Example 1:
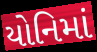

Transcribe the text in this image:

યોનિમાં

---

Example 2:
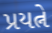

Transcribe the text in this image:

પ્રયત્ને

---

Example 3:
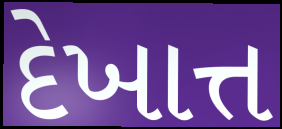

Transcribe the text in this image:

દેખાત્ત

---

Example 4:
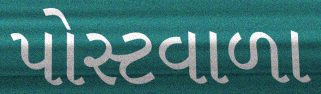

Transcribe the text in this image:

પોસ્ટવાળા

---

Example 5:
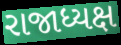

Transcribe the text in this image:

રાજાધ્યક્ષ